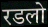
रडलो